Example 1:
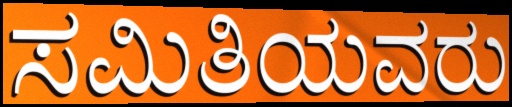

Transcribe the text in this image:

ಸಮಿತಿಯವರು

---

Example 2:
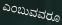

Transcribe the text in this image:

ಎಂಬುವವರೂ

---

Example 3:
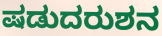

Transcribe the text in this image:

ಷಡುದರುಶನ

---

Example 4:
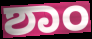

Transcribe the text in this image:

ಶಾಂ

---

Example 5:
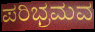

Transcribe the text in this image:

ಪರಿಭ್ರಮವ